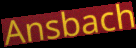
Ansbach